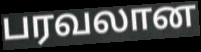
பரவலான